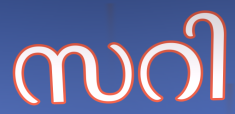
സറി